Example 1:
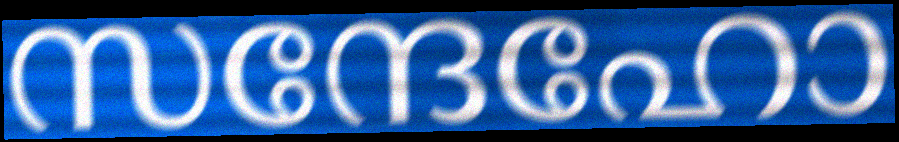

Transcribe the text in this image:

സന്ദേഹോ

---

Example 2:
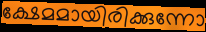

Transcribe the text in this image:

ക്ഷേമമായിരിക്കുന്നോ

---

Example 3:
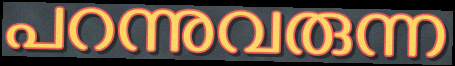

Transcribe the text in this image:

പറന്നുവരുന്ന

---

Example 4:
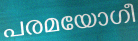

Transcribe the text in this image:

പരമയോഗീ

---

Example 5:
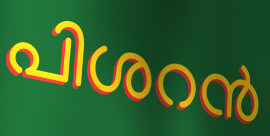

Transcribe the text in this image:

പിശറൻ